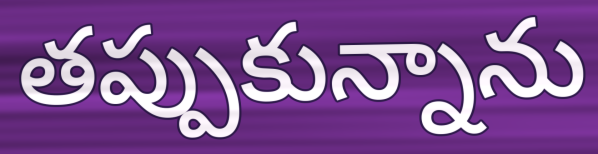
తప్పుకున్నాను